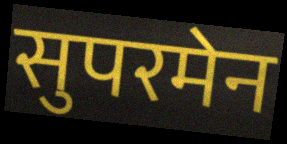
सुपरमेन